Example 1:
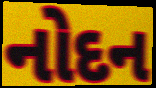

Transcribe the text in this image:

નોદન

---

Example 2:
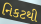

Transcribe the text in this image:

નિકટથી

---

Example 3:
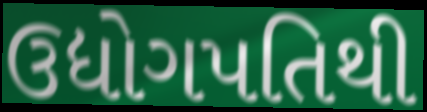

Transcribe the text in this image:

ઉદ્યોગપતિથી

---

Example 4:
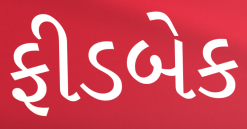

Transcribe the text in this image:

ફીડબેક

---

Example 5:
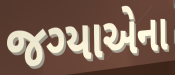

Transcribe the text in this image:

જગ્યાએના